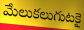
మేలుకలుగుటకై